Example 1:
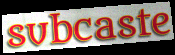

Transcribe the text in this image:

subcaste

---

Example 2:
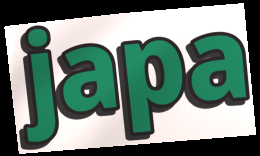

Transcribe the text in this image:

japa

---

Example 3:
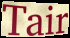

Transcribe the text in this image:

Tair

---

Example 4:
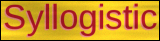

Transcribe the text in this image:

Syllogistic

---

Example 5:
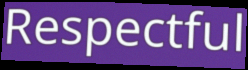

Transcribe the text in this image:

Respectful